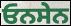
ਓਨਸੇਨ